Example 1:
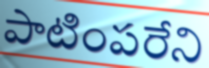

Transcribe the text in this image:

పాటింపరేని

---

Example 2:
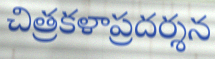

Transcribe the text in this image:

చిత్రకళాప్రదర్శన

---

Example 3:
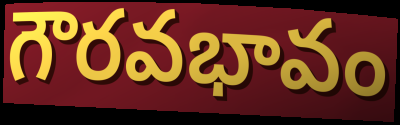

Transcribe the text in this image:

గౌరవభావం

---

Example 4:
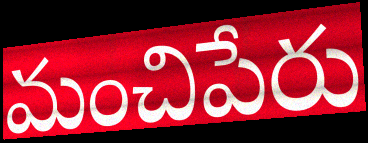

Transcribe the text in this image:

మంచిపేరు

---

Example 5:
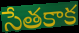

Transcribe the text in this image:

సేతకాక